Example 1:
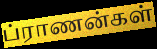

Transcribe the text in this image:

ப்ராணன்கள்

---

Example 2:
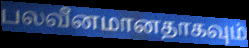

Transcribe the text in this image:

பலவீனமானதாகவும்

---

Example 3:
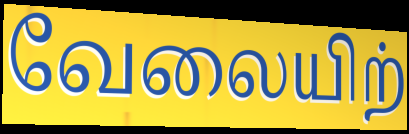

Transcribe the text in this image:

வேலையிற்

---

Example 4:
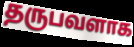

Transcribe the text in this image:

தருபவளாக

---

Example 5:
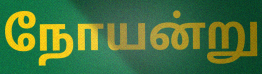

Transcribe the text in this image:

நோயன்று